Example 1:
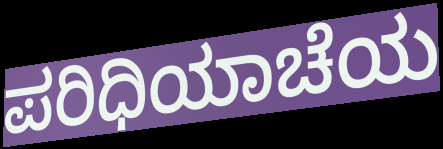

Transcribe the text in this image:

ಪರಿಧಿಯಾಚೆಯ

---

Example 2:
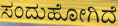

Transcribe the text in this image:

ಸಂದುಹೋಗಿದೆ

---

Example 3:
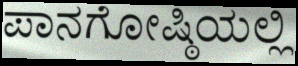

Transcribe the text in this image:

ಪಾನಗೋಷ್ಠಿಯಲ್ಲಿ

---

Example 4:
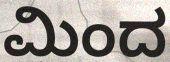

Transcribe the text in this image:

ಮಿಂದ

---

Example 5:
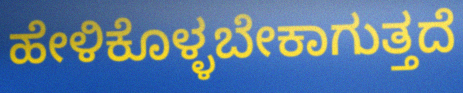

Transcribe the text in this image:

ಹೇಳಿಕೊಳ್ಳಬೇಕಾಗುತ್ತದೆ